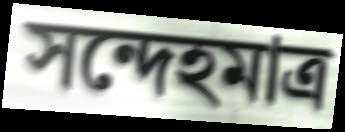
সন্দেহমাত্র